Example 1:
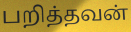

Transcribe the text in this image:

பறித்தவன்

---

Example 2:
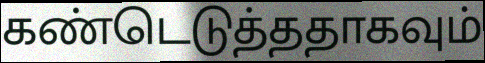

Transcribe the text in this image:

கண்டெடுத்ததாகவும்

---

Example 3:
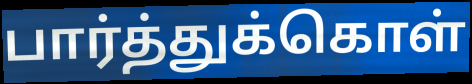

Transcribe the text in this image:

பார்த்துக்கொள்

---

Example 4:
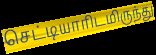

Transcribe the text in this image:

செட்டியாரிடமிருந்து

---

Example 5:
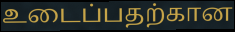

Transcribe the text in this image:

உடைப்பதற்கான